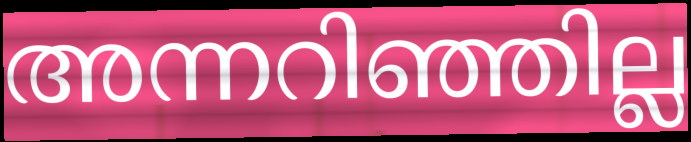
അന്നറിഞ്ഞില്ല